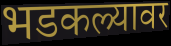
भडकल्यावर